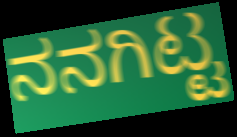
ನನಗಿಟ್ಟ